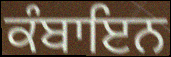
ਕੰਬਾਇਨ